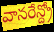
వానరేన్ద్రో